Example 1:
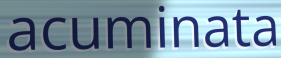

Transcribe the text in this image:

acuminata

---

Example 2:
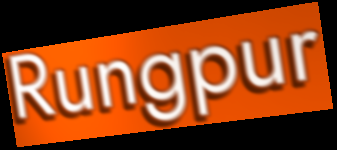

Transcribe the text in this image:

Rungpur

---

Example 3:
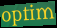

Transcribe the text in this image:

optim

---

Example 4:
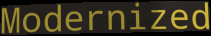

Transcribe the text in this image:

Modernized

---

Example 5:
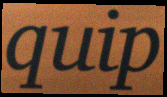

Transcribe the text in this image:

quip